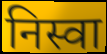
निस्वा